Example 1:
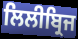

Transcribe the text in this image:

ਲਿਲੀਬ੍ਰਿਜ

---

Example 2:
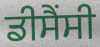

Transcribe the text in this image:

ਡੀਸੈਂਸੀ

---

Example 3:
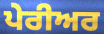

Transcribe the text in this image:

ਪੇਰੀਅਰ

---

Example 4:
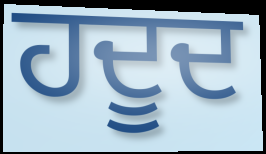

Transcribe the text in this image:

ਹਦੂਦ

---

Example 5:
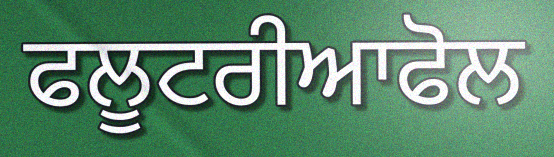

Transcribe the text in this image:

ਫਲੂਟਰੀਆਫੋਲ